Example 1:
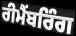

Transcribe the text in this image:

ਰੀਮੈਂਬਰਿੰਗ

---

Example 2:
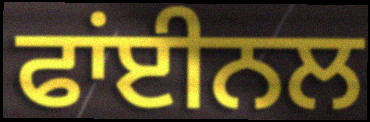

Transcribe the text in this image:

ਫਾਂਈਨਲ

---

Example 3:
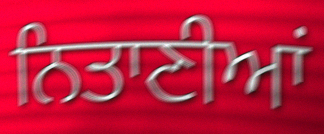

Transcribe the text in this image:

ਨਿਤਾਣੀਆਂ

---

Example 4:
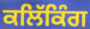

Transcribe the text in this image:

ਕਲਿੱਕਿੰਗ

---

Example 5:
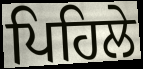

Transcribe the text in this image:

ਪਿਹਿਲੇ